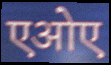
एओए